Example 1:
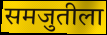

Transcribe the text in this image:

समजुतीला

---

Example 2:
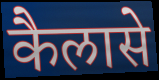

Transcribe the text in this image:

कैलासे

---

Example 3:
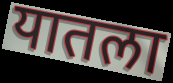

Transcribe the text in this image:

यातला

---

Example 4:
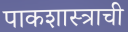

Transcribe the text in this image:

पाकशास्त्राची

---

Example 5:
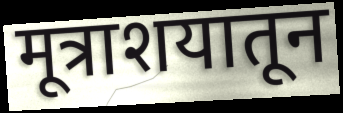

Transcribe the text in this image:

मूत्राशयातून